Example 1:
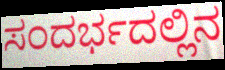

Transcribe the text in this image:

ಸಂದರ್ಭದಲ್ಲಿನ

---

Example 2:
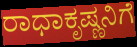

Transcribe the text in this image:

ರಾಧಾಕೃಷ್ಣನಿಗೆ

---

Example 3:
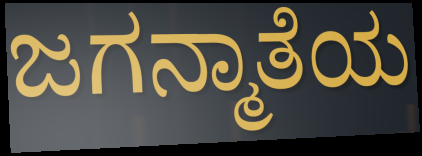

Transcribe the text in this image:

ಜಗನ್ಮಾತೆಯ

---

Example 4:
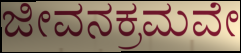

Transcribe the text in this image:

ಜೀವನಕ್ರಮವೇ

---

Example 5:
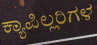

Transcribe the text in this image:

ಕ್ಯಾಪಿಲ್ಲರಿಗಳ